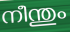
നീന്തും